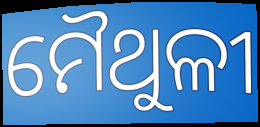
ମୈଥୁଳୀ